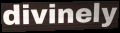
divinely